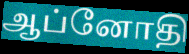
ஆப்னோதி